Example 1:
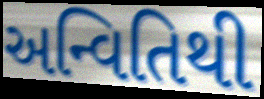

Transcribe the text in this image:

અન્વિતિથી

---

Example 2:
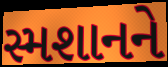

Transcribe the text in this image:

સ્મશાનને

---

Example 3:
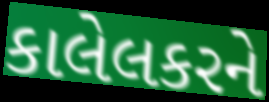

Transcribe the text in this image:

કાલેલકરને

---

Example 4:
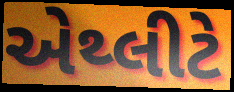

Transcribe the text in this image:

એથ્લીટે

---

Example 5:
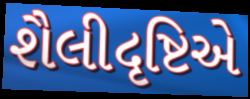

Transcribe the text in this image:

શૈલીદૃષ્ટિએ